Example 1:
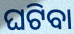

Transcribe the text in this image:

ଘଟିବା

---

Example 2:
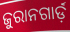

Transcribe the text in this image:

ଜୁରାନଗାର୍ଡ଼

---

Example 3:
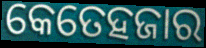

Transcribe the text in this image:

କେତେହଜାର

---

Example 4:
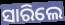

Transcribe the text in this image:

ସାରିଲେ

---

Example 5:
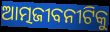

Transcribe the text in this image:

ଆତ୍ମଜୀବନୀଟିକୁ